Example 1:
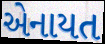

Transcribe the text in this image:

એનાયત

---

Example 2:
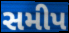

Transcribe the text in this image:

સમીપ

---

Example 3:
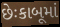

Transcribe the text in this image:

છેઃકાબૂમાં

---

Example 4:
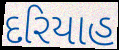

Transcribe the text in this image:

દરિયાહ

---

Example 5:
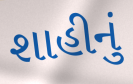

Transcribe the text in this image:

શાહીનું